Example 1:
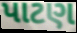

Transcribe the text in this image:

પાટણ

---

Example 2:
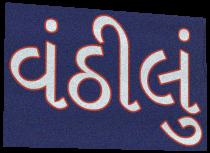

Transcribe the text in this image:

વંઠીલું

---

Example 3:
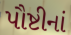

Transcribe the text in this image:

પૌષ્ટીનાં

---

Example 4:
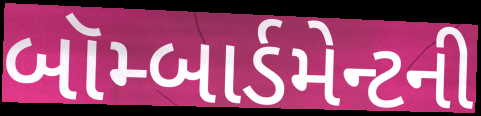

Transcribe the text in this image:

બૉમ્બાર્ડમેન્ટની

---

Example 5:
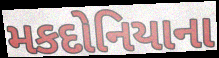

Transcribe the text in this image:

મકદોનિયાના